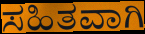
ಸಹಿತವಾಗಿ